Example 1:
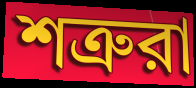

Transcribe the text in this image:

শত্রুরা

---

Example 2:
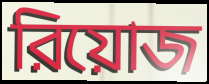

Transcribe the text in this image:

রিয়োজ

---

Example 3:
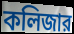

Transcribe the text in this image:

কলিজার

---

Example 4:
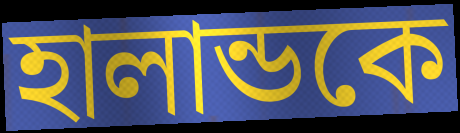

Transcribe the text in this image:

হালান্ডকে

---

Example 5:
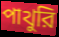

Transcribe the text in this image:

পাথুরি